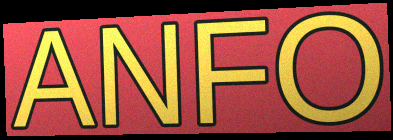
ANFO